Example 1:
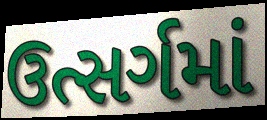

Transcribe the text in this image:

ઉત્સર્ગમાં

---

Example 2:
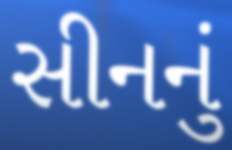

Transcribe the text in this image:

સીનનું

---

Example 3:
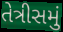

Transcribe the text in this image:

તેત્રીસમું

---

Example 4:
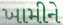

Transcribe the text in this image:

ખામીને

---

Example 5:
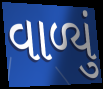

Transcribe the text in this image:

વાળ્યું